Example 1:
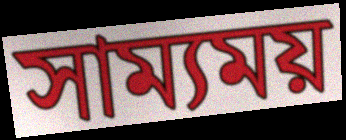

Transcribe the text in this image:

সাম্যময়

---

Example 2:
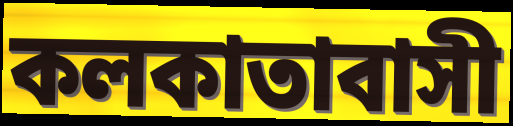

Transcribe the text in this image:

কলকাতাবাসী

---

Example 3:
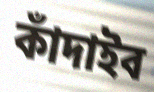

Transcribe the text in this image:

কাঁদাইব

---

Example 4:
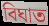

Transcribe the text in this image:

বিঘাত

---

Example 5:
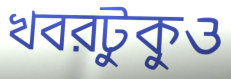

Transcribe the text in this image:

খবরটুকুও